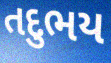
તદુભય